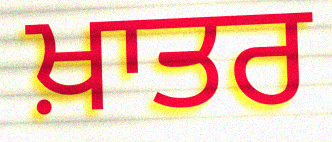
ਖ਼ਾਤਰ